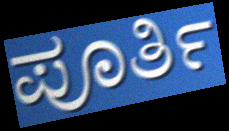
ಪೂರ್ತಿ